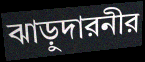
ঝাড়ুদারনীর